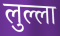
लुल्ला